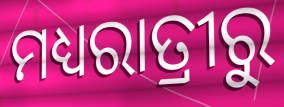
ମଧ୍ୟରାତ୍ରୀରୁ